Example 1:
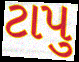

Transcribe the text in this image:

ટાપુ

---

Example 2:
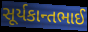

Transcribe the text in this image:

સૂર્યકાન્તભાઈ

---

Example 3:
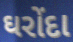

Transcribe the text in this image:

ઘરોંદા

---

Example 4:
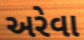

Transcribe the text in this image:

અરેવા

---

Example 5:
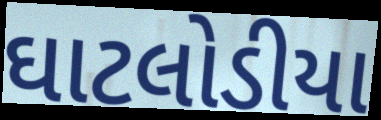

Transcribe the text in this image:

ઘાટલોડીયા